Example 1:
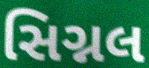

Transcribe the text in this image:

સિગ્નલ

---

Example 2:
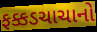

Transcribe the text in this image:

ફક્કડચાચાનો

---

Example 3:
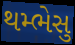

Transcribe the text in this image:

થમ્ભેસુ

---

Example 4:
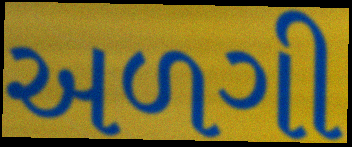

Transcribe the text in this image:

અળગી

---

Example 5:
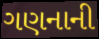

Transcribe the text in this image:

ગણનાની